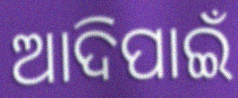
ଆଦିପାଇଁ